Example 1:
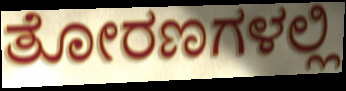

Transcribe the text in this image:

ತೋರಣಗಳಲ್ಲಿ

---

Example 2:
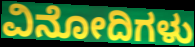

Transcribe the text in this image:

ವಿನೋದಿಗಳು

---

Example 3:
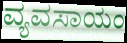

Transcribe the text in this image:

ವ್ಯವಸಾಯಂ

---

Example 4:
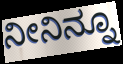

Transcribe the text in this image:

ನೀನಿನ್ನೂ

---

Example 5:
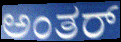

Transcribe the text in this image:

ಅಂತರ್